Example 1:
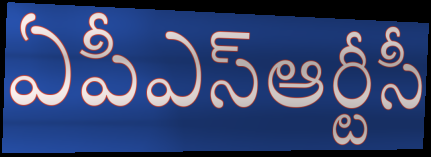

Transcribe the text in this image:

ఏపీఎస్ఆర్టీసీ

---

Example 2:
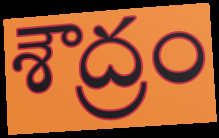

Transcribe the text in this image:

శౌద్రం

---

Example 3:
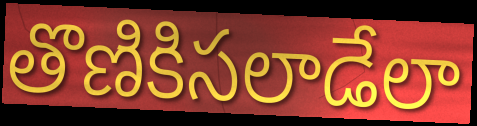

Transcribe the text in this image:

తొణికిసలాడేలా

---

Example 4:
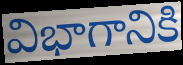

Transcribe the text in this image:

విభాగానికి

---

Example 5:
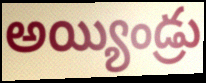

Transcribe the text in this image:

అయ్యిండ్రు